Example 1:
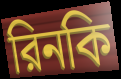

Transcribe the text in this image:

রিনকি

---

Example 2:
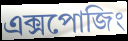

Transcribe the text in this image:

এক্সপোজিং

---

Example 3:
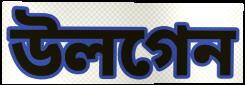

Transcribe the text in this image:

উলগেন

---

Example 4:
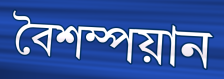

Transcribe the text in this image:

বৈশম্পয়ান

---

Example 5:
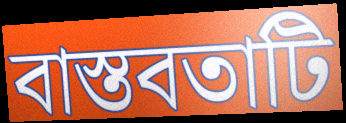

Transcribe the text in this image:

বাস্তবতাটি